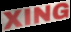
XING